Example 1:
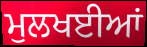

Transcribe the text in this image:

ਮੁਲਖਈਆਂ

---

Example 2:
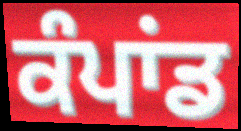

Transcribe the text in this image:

ਕੰਪਾਂਡ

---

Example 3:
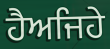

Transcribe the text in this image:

ਹੈਅਜਿਹੇ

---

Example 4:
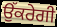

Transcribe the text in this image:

ਉੱਕਰੇਗੀ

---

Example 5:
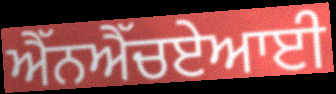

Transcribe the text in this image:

ਐੱਨਐੱਚਏਆਈ